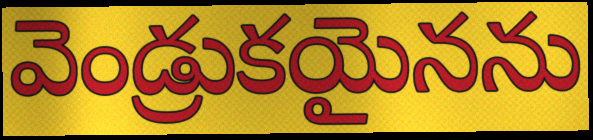
వెండ్రుకయైనను